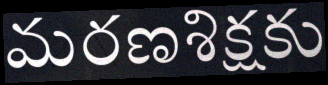
మరణశిక్షకు